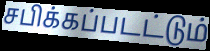
சபிக்கப்படட்டும்